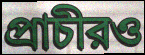
প্রাচীরও